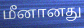
மீனானது